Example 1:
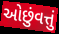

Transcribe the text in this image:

ઓછુંવત્તું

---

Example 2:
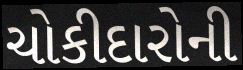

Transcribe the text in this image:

ચોકીદારોની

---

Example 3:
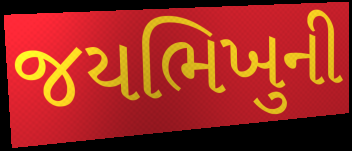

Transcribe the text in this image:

જયભિખુની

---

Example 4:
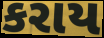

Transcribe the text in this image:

કરાય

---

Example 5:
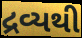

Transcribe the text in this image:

દ્રવ્યથી